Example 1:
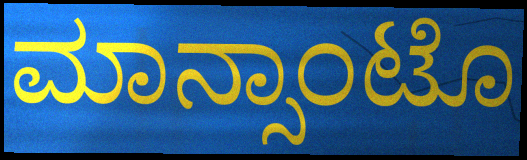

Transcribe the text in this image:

ಮಾನ್ಸಾಂಟೊ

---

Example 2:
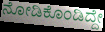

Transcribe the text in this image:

ನೋಡಿಕೊಂಡಿದ್ದೇ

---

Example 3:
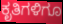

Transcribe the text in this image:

ಕೃತಿಗಳಿಗೂ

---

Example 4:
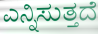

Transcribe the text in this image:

ಎನ್ನಿಸುತ್ತದೆ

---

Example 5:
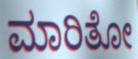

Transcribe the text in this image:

ಮಾರಿತೋ